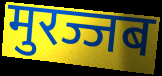
मुरज्जब